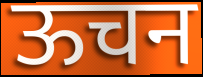
ऊचन